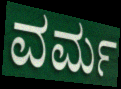
ವರ್ಮ